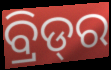
ବ୍ରିଡ୍‌ର